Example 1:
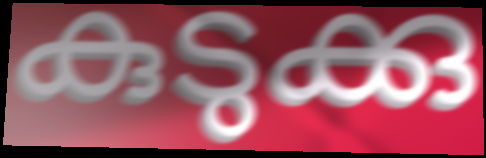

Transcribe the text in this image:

കുടുക്കു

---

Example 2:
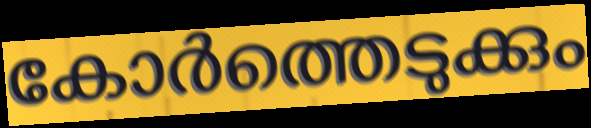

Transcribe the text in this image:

കോർത്തെടുക്കും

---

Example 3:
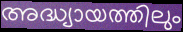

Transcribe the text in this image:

അദ്ധ്യായത്തിലും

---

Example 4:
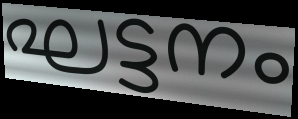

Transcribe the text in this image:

ഘട്ടനം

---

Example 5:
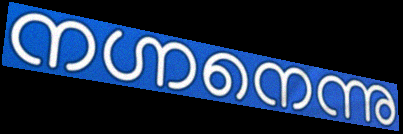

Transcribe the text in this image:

നഗ്നനെന്നു